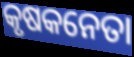
କୃଷକନେତା